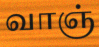
வாஞ்